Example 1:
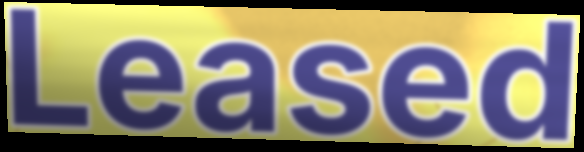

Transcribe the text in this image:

Leased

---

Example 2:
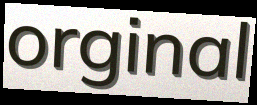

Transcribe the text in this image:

orginal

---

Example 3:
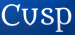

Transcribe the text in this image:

Cusp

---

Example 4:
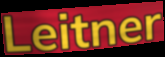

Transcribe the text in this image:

Leitner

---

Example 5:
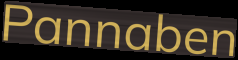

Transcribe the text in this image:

Pannaben